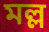
মল্ল